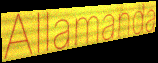
Allamanda